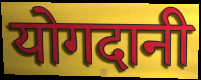
योगदानी